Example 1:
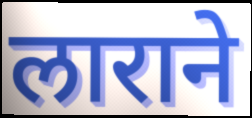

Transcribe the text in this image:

लाराने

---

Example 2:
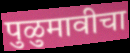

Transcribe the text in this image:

पुळुमावीचा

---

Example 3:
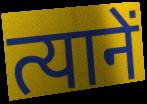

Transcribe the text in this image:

त्यानें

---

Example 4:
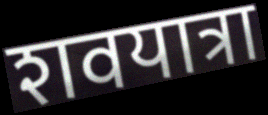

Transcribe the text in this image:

शवयात्रा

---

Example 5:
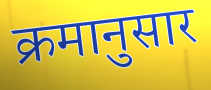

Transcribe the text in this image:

क्रमानुसार